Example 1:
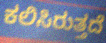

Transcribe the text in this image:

ಕಲಿಸಿರುತ್ತದೆ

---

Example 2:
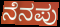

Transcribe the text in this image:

ನೆನಪು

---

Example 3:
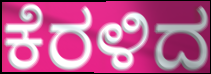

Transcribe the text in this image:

ಕೆರಳಿದ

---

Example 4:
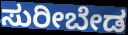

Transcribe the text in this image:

ಸುರೀಬೇಡ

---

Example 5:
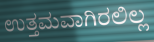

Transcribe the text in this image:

ಉತ್ತಮವಾಗಿರಲಿಲ್ಲ